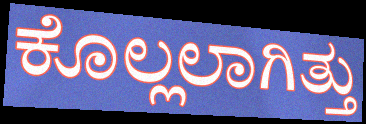
ಕೊಲ್ಲಲಾಗಿತ್ತು